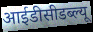
आईडीसीडब्ल्यू